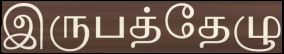
இருபத்தேழு